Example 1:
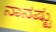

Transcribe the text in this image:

ನಾನಷ್ಟು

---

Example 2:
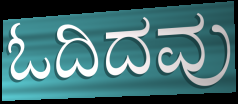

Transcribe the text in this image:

ಓದಿದವು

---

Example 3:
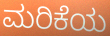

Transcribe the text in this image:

ಮರಿಕೆಯ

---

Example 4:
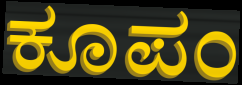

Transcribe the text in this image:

ಕೂಪಂ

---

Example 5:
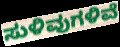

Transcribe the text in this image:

ಸುಳಿವುಗಳಿವೆ